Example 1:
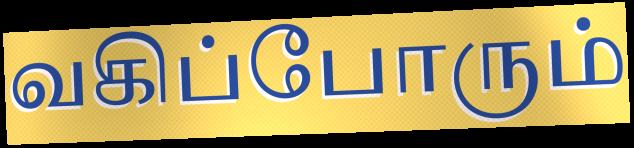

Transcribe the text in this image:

வகிப்போரும்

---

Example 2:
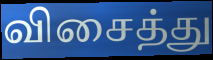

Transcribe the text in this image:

விசைத்து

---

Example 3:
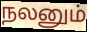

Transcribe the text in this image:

நலனும்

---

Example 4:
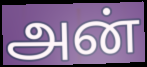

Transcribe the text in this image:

அன்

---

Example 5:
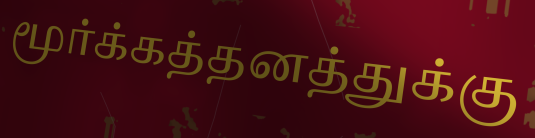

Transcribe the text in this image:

மூர்க்கத்தனத்துக்கு